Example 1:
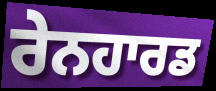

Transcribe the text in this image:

ਰੇਨਹਾਰਡ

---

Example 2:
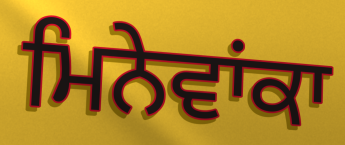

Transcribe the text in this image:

ਮਿਨੇਵਾਂਕਾ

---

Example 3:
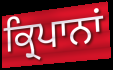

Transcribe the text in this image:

ਕ੍ਰਿਪਾਨਾਂ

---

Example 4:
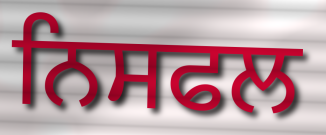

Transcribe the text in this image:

ਨਿਸਫਲ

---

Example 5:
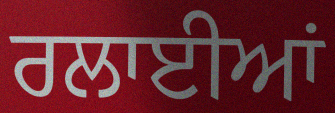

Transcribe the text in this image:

ਰਲਾਈਆਂ